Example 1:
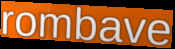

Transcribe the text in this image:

rombave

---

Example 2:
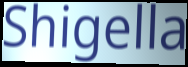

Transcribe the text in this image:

Shigella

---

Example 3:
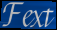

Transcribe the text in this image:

Fext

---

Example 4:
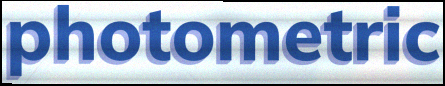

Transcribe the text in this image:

photometric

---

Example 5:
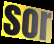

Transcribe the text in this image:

sor